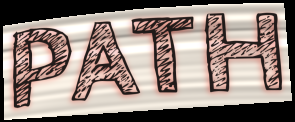
PATH